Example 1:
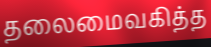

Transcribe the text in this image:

தலைமைவகித்த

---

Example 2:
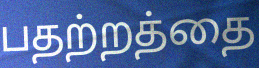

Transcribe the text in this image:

பதற்றத்தை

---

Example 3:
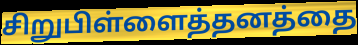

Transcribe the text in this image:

சிறுபிள்ளைத்தனத்தை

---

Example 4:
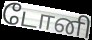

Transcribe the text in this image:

டோனி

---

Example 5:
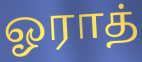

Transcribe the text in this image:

ஓராத்